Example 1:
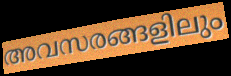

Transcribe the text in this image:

അവസരങ്ങളിലും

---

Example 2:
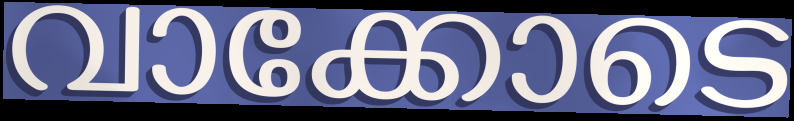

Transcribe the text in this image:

വാക്കോടെ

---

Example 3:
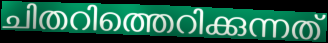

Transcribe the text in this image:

ചിതറിത്തെറിക്കുന്നത്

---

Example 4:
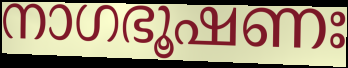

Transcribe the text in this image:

നാഗഭൂഷണഃ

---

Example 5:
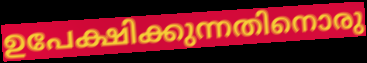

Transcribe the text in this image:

ഉപേക്ഷിക്കുന്നതിനൊരു